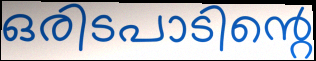
ഒരിടപാടിന്റെ